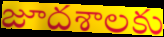
జూదశాలకు